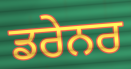
ਡਰੇਨਰ